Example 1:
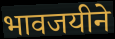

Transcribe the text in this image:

भावजयीने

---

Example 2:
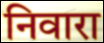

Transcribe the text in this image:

निवारा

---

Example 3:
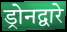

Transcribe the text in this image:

ड्रोनद्वारे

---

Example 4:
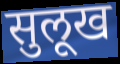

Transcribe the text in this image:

सुलूख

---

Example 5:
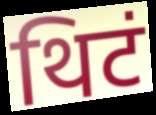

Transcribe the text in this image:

थिटं